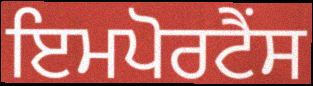
ਇਮਪੋਰਟੈਂਸ